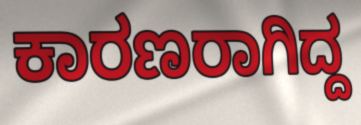
ಕಾರಣರಾಗಿದ್ದ